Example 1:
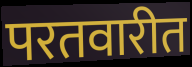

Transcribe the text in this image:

परतवारीत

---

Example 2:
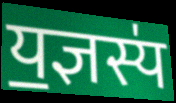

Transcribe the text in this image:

य॒ज्ञस्य॑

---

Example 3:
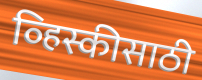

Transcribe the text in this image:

व्हिस्कीसाठी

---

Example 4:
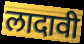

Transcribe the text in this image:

लादावी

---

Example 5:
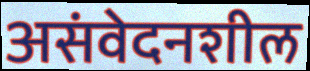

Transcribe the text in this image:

असंवेदनशील